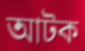
আটক